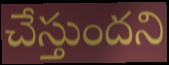
చేస్తుందని